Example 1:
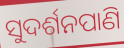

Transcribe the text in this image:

ସୁଦର୍ଶନପାଣି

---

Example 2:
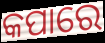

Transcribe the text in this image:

କପାରେ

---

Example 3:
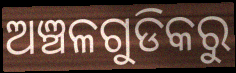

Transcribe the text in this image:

ଅଞ୍ଚଳଗୁଡିକରୁ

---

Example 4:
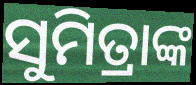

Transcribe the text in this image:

ସୁମିତ୍ରାଙ୍କ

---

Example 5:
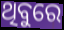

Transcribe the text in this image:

ଥିବୁରେ